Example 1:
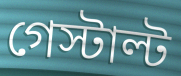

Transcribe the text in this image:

গেস্টাল্ট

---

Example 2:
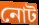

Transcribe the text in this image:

নোট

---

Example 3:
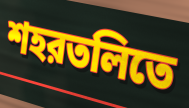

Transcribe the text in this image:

শহরতলিতে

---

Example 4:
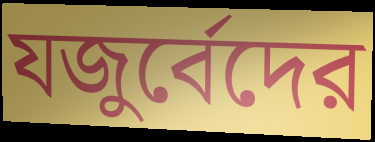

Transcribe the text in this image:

যজুর্বেদের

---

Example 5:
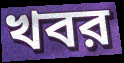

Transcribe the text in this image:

খবর